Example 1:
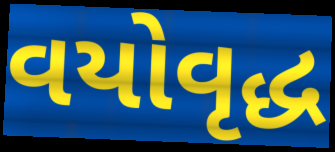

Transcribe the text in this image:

વયોવૃદ્ધ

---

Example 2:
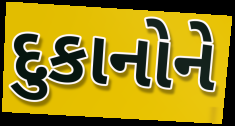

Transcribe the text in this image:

દુકાનોને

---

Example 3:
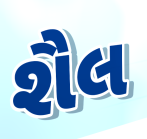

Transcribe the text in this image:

શૈલ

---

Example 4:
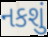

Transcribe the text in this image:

નકશું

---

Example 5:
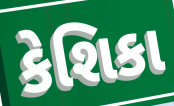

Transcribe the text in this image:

કેશિકા